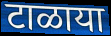
टाळाया